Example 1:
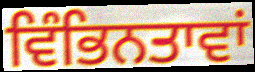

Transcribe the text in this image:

ਵਿੰਭਿਨਤਾਵਾਂ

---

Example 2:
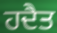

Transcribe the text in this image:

ਹਦੈਤ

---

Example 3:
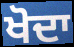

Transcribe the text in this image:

ਖੋਦਾ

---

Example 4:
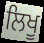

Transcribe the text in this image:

ਲਿਖੂ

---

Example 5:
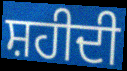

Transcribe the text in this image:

ਸ਼ਹੀਦੀ